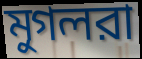
মুগলরা